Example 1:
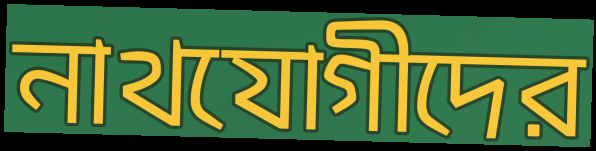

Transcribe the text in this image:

নাথযোগীদের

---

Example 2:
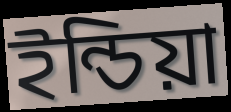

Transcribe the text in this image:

ইন্ডিয়া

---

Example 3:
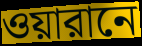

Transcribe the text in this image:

ওয়ারানে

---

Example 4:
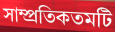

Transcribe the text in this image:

সাম্প্রতিকতমটি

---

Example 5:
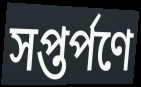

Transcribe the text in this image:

সপ্তর্পণে